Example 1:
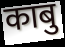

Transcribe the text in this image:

काबु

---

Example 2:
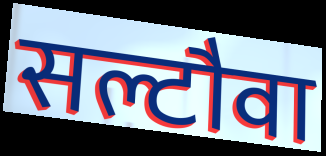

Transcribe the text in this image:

सल्टौवा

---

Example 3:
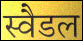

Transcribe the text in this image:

स्वैडल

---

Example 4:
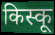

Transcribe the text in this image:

किस्कू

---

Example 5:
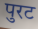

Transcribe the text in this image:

पुरट